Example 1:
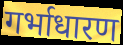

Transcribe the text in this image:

गर्भाधारण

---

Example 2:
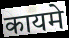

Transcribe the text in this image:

कायमे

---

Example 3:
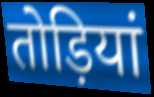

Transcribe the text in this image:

तोड़ियां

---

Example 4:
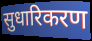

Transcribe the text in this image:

सुधारिकरण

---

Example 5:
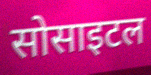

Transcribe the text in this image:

सोसाइटल